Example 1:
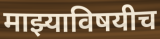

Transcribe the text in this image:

माझ्याविषयीच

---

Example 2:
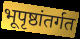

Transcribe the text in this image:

भूपृष्ठांतर्गत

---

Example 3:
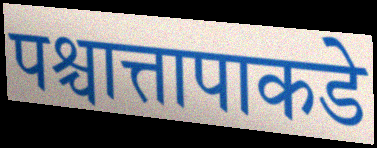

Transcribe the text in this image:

पश्चात्तापाकडे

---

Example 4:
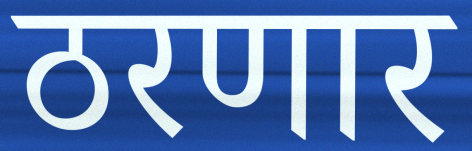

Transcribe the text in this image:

ठरणार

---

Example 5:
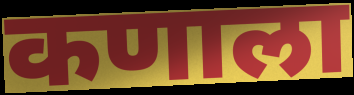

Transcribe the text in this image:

कणाला